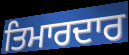
ਤਿਮਾਰਦਾਰ